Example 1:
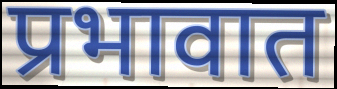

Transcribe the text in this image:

प्रभावात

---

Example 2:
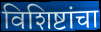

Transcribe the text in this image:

विशिष्टांचा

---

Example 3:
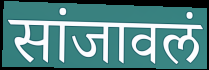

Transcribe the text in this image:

सांजावलं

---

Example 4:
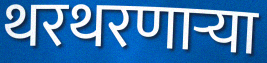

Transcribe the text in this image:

थरथरणाऱ्या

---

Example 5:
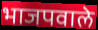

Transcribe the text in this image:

भाजपवाले